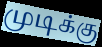
முடிக்கு